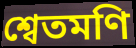
শ্বেতমণি